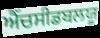
ਐੱਚਸੀਡਬਲਯੂ